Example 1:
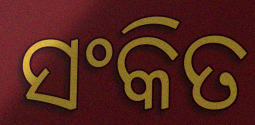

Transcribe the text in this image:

ସଂକିତ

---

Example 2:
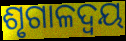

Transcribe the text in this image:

ଶୃଗାଳଦ୍ୱୟ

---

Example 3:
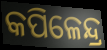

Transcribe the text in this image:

କପିଳେନ୍ଦ୍ର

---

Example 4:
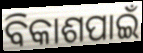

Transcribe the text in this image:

ବିକାଶପାଇଁ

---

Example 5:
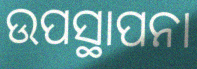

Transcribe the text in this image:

ଉପସ୍ଥାପନା